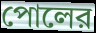
পোলের